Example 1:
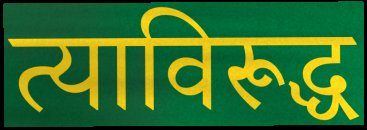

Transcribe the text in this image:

त्याविरूद्ध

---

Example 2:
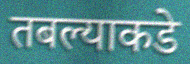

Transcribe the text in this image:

तबल्याकडे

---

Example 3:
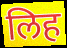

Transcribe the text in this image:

लिह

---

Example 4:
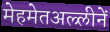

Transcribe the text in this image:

मेहमेतअल्लीनें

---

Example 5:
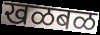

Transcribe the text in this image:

खळबळ